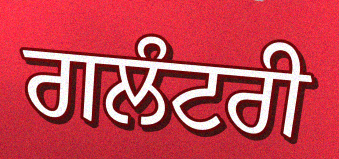
ਗਲੰਟਰੀ